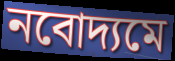
নবোদ্যমে